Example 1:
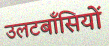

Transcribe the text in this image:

उलटबाँसियों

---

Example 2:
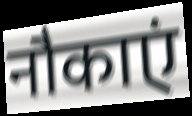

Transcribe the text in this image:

नौकाएं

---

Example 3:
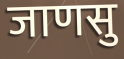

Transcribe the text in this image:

जाणसु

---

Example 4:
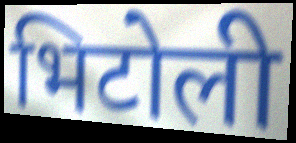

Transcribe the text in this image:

भिटोली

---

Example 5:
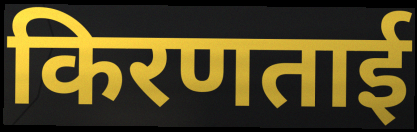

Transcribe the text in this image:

किरणताई